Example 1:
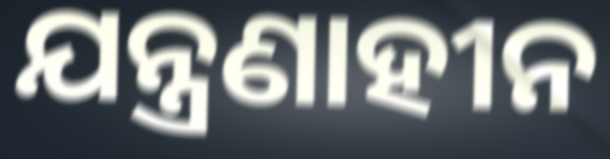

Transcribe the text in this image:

ଯନ୍ତ୍ରଣାହୀନ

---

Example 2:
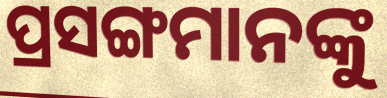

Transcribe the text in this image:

ପ୍ରସଙ୍ଗମାନଙ୍କୁ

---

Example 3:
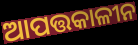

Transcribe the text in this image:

ଆପତ୍ତକାଳୀନ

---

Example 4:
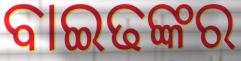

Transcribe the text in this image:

ବାଇଢଙ୍କର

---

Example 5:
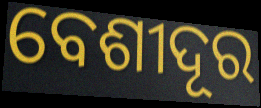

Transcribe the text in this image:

ବେଶୀଦୂର